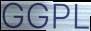
GGPL